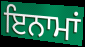
ਇਨਾਮਾਂ